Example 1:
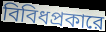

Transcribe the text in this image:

বিবিধপ্রকারে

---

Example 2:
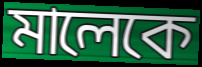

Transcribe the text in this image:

মালেকে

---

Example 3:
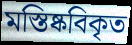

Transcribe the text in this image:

মস্তিষ্কবিকৃত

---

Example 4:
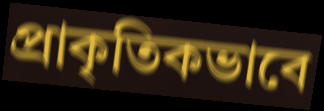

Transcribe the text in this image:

প্রাকৃতিকভাবে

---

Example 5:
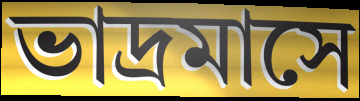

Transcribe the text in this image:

ভাদ্রমাসে